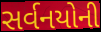
સર્વનયોની